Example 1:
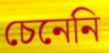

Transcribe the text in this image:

চেনেনি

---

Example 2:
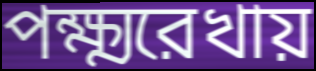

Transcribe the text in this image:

পক্ষ্মরেখায়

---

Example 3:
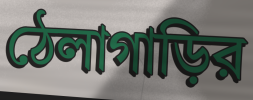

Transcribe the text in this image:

ঠেলাগাড়ির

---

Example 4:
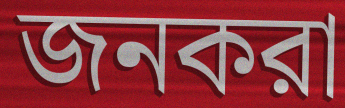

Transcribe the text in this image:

জনকরা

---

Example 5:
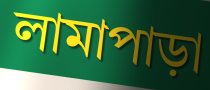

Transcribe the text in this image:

লামাপাড়া